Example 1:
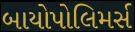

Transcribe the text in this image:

બાયોપોલિમર્સ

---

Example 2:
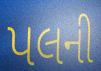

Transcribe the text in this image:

પલની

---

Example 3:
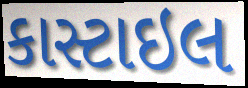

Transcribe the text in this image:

કાસ્ટાઇલ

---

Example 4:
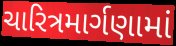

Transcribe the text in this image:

ચારિત્રમાર્ગણામાં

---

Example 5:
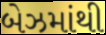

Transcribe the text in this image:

બેઝમાંથી